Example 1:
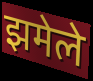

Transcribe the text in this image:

झमेले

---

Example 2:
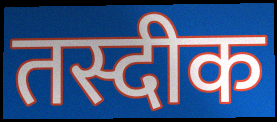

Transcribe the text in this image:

तस्दीक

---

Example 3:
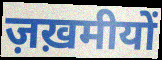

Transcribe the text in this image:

ज़ख़मीयों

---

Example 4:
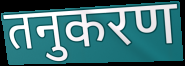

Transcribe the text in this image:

तनुकरण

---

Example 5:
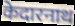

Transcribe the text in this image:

केदारनाथ